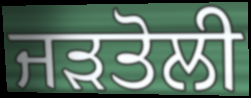
ਜੜਤੋਲੀ